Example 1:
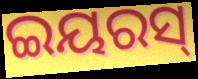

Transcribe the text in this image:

ଇୟରସ୍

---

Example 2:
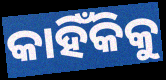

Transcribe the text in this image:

କାହିଁକିକୁ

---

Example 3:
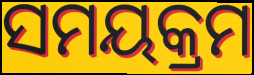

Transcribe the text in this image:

ସମୟକ୍ରମ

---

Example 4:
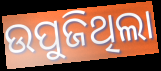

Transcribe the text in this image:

ଉପୁଜିଥିଲା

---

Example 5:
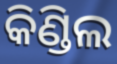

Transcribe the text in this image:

କିଣ୍ଡିଲ